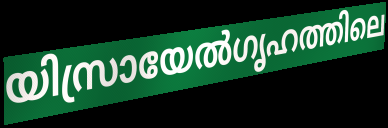
യിസ്രായേൽഗൃഹത്തിലെ